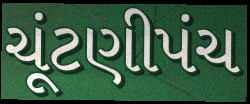
ચૂંટણીપંચ